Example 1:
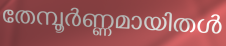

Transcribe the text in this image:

തേമ്പൂർണ്ണമായിതൾ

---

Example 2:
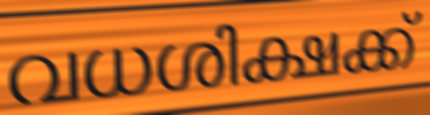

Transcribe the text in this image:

വധശിക്ഷക്ക്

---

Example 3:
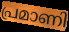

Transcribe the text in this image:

പ്രമാണി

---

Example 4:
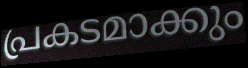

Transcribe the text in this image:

പ്രകടമാക്കും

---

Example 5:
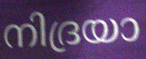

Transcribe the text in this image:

നിദ്രയാ